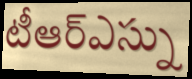
టీఆర్ఎస్ను